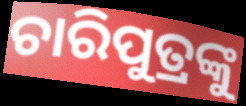
ଚାରିପୁତ୍ରଙ୍କୁ